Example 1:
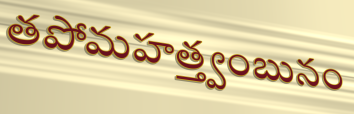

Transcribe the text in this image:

తపోమహత్త్వంబునం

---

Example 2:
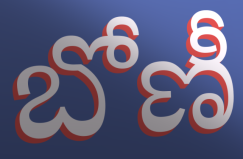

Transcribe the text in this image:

బోణీ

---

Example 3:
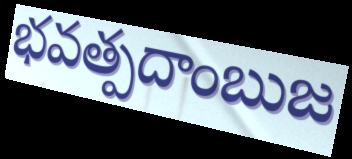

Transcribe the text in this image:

భవత్పదాంబుజ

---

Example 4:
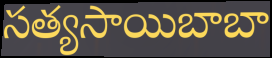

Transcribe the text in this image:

సత్యసాయిబాబా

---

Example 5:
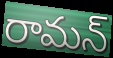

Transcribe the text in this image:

రామన్